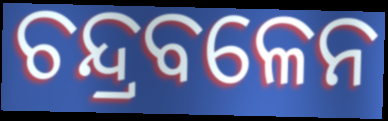
ଚନ୍ଦ୍ରବଳେନ